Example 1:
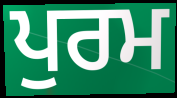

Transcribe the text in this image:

ਪੁਰਮ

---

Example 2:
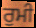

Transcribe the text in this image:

ਰੁਮੀ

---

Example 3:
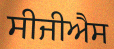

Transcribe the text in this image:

ਸੀਜੀਐਸ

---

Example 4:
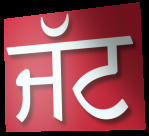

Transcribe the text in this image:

ਜੱਟ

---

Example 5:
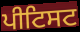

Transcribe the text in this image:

ਪੀਟਿਸਟ